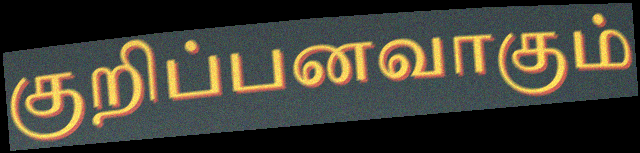
குறிப்பனவாகும்